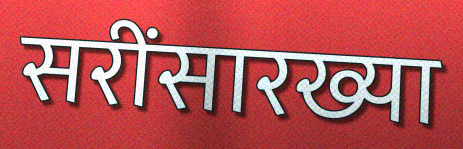
सरींसारख्या